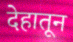
देहातून